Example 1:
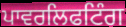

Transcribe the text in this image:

ਪਾਵਰਲਿਫਟਿੰਗ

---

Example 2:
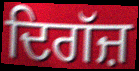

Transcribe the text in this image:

ਦਿਗੱਜ਼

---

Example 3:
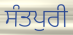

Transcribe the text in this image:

ਸੰਤਪੁਰੀ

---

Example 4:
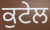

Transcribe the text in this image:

ਕੁਟੇਲ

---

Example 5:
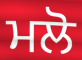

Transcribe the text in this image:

ਮਲੋ